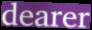
dearer